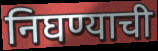
निघण्याची